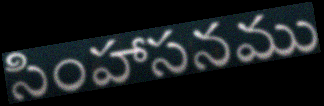
సింహాసనము